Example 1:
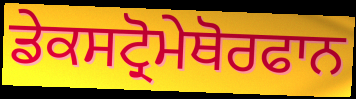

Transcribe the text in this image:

ਡੇਕਸਟ੍ਰੋਮੇਥੋਰਫਾਨ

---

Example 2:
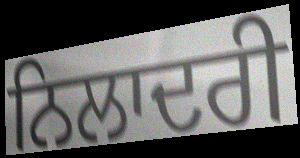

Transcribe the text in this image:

ਨਿਲਾਦਰੀ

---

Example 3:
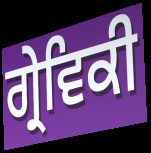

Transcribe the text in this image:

ਗ੍ਰੇਵਿਕੀ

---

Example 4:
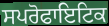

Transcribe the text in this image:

ਸਪਰੋਫਾਇਟਿਕ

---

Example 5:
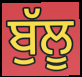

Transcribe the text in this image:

ਬੁੱਲੂ